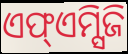
ଏଫ୍ଏମ୍ସିଜି